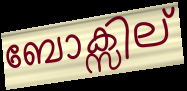
ബോക്സില്